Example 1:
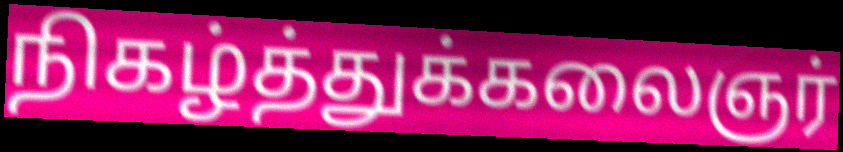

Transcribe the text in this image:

நிகழ்த்துக்கலைஞர்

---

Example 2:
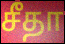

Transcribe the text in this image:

சீதா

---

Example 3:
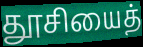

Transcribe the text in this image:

தூசியைத்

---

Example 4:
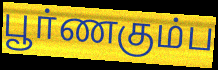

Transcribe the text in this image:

பூர்ணகும்ப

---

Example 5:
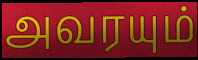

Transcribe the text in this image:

அவரயும்